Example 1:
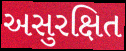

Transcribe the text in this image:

અસુરક્ષિત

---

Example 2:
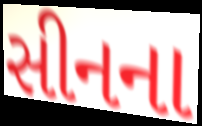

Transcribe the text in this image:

સીનના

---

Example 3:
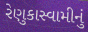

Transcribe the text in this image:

રેણુકાસ્વામીનું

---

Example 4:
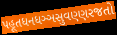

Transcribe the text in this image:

પહૂતધનધઞ્ઞસુવણ્ણરજતો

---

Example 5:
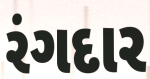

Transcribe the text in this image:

રંગદાર